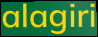
alagiri